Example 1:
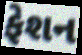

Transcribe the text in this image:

ફેશન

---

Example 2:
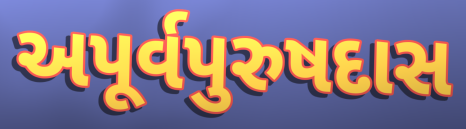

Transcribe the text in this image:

અપૂર્વપુરુષદાસ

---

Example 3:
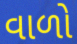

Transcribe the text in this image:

વાળો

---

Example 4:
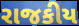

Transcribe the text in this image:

રાજકીય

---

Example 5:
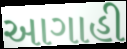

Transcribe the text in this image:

આગાહી